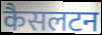
कैसलटन